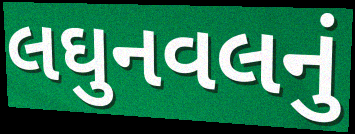
લઘુનવલનું